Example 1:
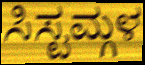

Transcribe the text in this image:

ಸಿಸ್ಟಮ್ಗಳ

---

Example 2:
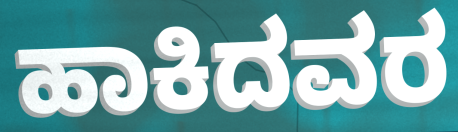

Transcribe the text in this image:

ಹಾಕಿದವರ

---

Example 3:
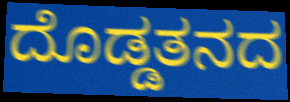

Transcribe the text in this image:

ದೊಡ್ಡತನದ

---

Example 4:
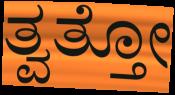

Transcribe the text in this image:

ತ್ವತ್ತೋ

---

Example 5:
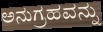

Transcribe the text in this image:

ಅನುಗ್ರಹವನ್ನು